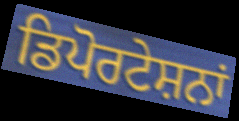
ਡਿਪੋਰਟੇਸ਼ਨਾਂ